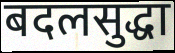
बदलसुद्धा